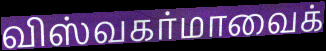
விஸ்வகர்மாவைக்